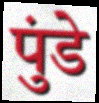
पुंडे